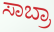
ಸಾಬ್ರಾ